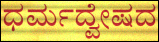
ಧರ್ಮದ್ವೇಷದ